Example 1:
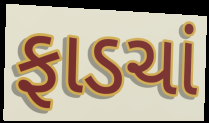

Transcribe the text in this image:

ફાડચાં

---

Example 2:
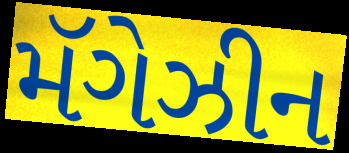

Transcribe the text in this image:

મૅગેઝીન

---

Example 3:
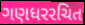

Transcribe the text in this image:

ગણધરરચિત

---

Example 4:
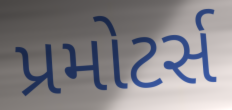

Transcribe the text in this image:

પ્રમોટર્સ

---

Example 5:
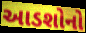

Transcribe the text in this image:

આડશોનો